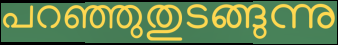
പറഞ്ഞുതുടങ്ങുന്നു